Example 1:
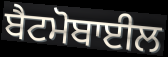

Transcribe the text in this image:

ਬੈਟਮੋਬਾਈਲ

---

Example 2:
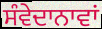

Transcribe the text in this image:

ਸੰਵੇਦਾਨਾਵਾਂ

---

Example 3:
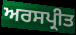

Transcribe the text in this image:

ਅਰਸਪ੍ਰੀਤ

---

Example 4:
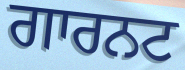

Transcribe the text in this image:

ਗਾਰਨਟ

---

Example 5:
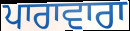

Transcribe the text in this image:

ਪਾਰਾਵਾਰਾ